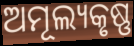
ଅମୂଲ୍ୟକୃଷ୍ଣ